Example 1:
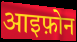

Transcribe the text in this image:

आइफ़ोन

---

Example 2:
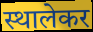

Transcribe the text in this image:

स्थालेकर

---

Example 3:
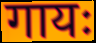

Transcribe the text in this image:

गायः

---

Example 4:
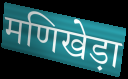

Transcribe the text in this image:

मणिखेड़ा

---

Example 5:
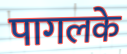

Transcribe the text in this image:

पागलके